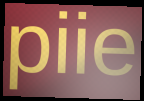
piie